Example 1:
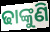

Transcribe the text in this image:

ଢାଙ୍କୁଣି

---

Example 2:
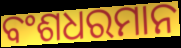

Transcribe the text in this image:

ବଂଶଧରମାନ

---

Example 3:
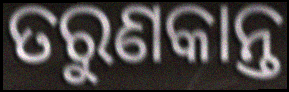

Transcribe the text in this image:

ତରୁଣକାନ୍ତ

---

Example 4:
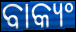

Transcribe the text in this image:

ବାକ୍ୟଂ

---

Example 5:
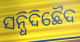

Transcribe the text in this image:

ସନ୍ଧିଦିଛୈଦ